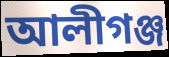
আলীগঞ্জ